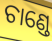
ଚାଣ୍ଡେ